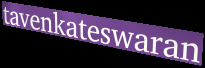
tavenkateswaran